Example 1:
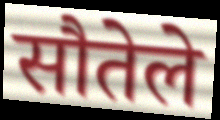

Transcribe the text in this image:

सौतेले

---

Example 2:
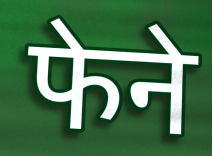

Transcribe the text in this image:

फेने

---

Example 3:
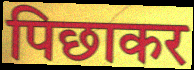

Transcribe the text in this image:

पिछाकर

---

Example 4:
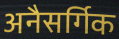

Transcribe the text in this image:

अनैसर्गिक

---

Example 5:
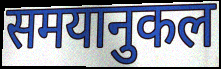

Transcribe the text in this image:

समयानुकल